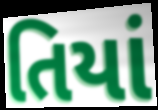
તિયાં